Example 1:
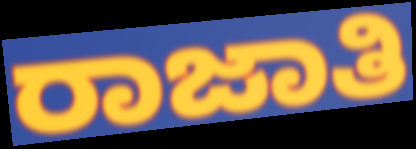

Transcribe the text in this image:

ರಾಜಾತಿ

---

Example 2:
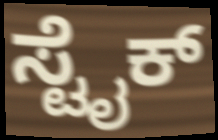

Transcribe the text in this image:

ಸ್ಟೈಕ್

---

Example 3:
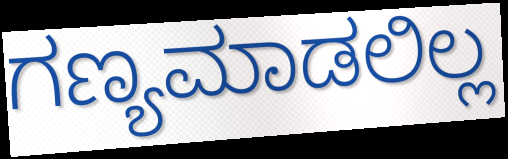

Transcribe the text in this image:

ಗಣ್ಯಮಾಡಲಿಲ್ಲ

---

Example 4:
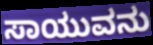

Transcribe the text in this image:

ಸಾಯುವನು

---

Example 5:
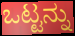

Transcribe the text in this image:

ಒಟ್ಟನ್ನು